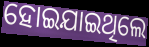
ହୋଇଯାଇଥିଲେ